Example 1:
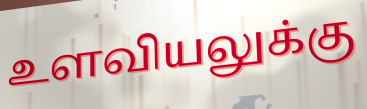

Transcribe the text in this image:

உளவியலுக்கு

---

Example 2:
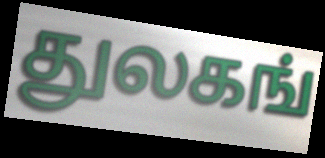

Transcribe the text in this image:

துலகங்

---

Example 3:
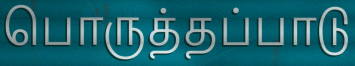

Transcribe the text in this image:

பொருத்தப்பாடு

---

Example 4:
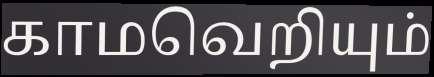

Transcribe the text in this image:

காமவெறியும்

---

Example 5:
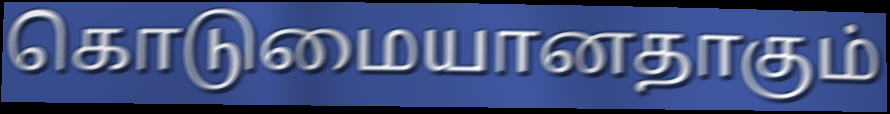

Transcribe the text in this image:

கொடுமையானதாகும்